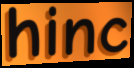
hinc